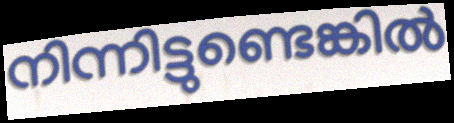
നിന്നിട്ടുണ്ടെങ്കിൽ